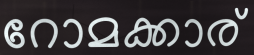
റോമക്കാര്